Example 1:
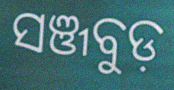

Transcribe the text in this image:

ସଞ୍ଜବୁଡ଼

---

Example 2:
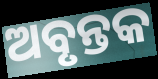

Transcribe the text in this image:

ଅବୃନ୍ତକ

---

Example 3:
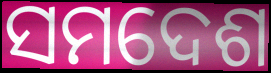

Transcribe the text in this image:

ସମଦେଶ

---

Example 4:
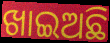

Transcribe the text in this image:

ଖାଇଅଛି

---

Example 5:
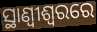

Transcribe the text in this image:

ସ୍ଥାଣ୍ୱୀଶ୍ୱରରେ